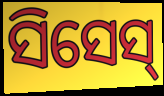
ସିସେସ୍